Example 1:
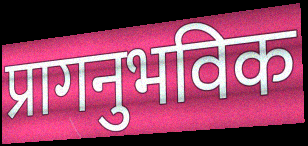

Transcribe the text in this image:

प्रागनुभविक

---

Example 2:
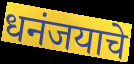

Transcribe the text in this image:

धनंजयाचे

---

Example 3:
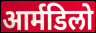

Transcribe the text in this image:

आर्मडिलो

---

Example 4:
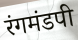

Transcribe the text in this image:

रंगमंडपी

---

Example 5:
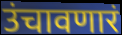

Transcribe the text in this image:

उंचावणारं